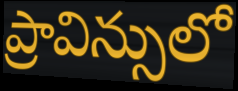
ప్రావిన్సులో